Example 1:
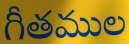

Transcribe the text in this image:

గీతముల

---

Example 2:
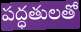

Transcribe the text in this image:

పద్ధతులతో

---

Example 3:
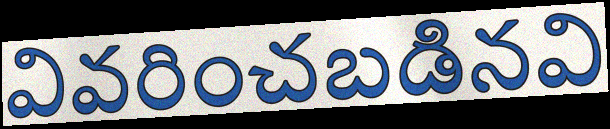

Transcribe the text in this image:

వివరించబడినవి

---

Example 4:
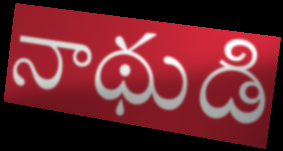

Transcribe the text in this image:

నాథుడి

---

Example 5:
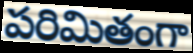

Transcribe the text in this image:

పరిమితంగా